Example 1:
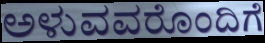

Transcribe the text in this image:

ಅಳುವವರೊಂದಿಗೆ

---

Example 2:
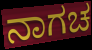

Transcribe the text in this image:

ನಾಗಚ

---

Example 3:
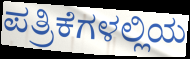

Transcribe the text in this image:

ಪತ್ರಿಕೆಗಳಲ್ಲಿಯ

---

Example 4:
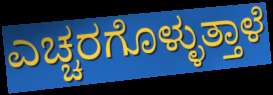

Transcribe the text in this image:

ಎಚ್ಚರಗೊಳ್ಳುತ್ತಾಳೆ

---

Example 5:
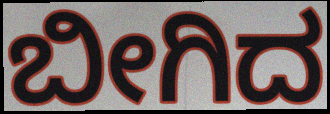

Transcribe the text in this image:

ಬೀಗಿದ